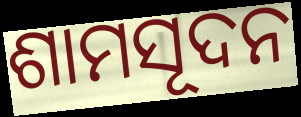
ଶାମସୂଦନ